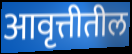
आवृत्तीतील